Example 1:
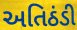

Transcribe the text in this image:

અતિઠંડી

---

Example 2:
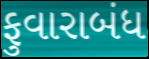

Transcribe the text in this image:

ફુવારાબંધ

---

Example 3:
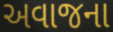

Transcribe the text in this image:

અવાજના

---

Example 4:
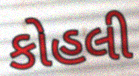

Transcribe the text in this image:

કોહલી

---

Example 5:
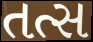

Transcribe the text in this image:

તત્સ